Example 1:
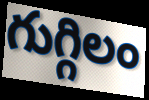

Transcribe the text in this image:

గుగ్గిలం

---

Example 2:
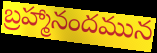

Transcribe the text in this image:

బ్రహ్మానందమున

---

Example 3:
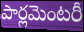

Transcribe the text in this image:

పార్లమెంటరీ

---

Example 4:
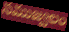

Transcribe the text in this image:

సముజ్వలం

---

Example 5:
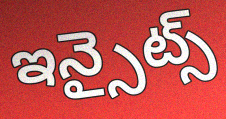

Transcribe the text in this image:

ఇన్సైట్స్